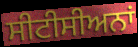
ਸੀਟੀਸੀਅਨਾਂ